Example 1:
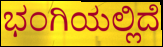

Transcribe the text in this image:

ಭಂಗಿಯಲ್ಲಿದೆ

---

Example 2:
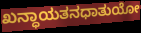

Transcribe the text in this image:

ಖನ್ಧಾಯತನಧಾತುಯೋ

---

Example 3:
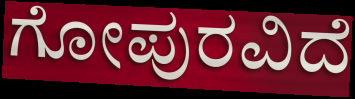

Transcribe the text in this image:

ಗೋಪುರವಿದೆ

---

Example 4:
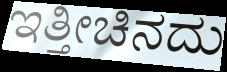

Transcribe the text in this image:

ಇತ್ತೀಚಿನದು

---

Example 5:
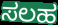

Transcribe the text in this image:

ಸಲಹ